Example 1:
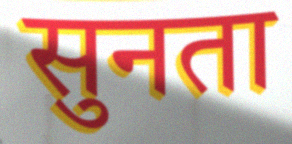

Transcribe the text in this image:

सुनता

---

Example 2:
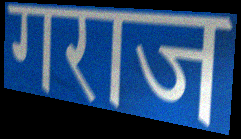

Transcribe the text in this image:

गराज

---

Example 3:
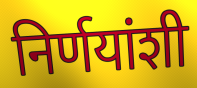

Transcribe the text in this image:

निर्णयांशी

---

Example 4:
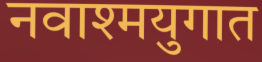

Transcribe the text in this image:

नवाश्मयुगात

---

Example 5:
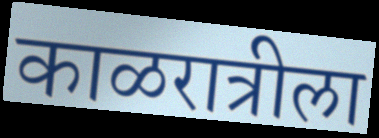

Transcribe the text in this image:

काळरात्रीला